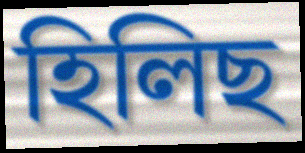
হিলিছ